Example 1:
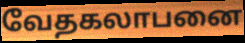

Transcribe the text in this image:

வேதகலாபனை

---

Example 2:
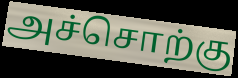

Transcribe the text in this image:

அச்சொற்கு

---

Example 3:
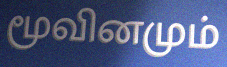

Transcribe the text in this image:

மூவினமும்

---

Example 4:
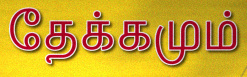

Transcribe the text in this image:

தேக்கமும்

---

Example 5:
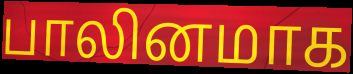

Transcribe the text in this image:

பாலினமாக